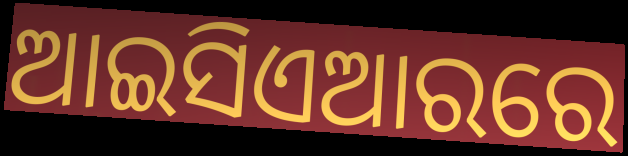
ଆଇସିଏଆରରେ